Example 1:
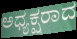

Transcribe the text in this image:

ಅಧ್ಯಕ್ಷರಾದ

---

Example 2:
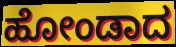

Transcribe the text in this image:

ಹೋಂಡಾದ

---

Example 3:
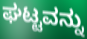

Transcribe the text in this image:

ಘಟ್ಟವನ್ನು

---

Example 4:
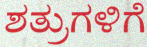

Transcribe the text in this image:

ಶತ್ರುಗಳಿಗೆ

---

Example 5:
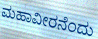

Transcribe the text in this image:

ಮಹಾವೀರನೆಂದು